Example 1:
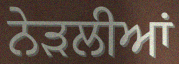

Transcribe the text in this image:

ਨੇੜਲੀਆਂ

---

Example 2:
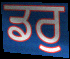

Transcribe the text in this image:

ਡਰੁ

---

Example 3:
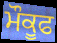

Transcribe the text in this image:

ਮੌਕੂਫ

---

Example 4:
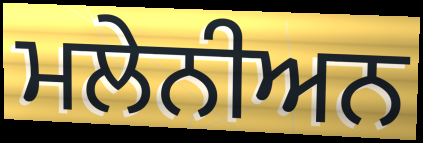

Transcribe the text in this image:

ਮਲੇਨੀਅਨ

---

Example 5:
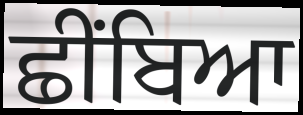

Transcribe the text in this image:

ਛੀਂਬਿਆ